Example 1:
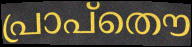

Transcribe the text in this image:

പ്രാപ്തൌ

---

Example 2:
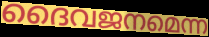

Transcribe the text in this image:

ദൈവജനമെന്ന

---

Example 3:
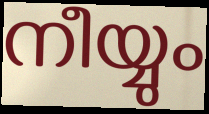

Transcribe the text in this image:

നീയ്യും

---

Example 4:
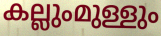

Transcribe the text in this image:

കല്ലുംമുള്ളും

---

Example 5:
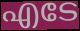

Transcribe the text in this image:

എടേ